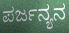
ಪರ್ಜನ್ಯನ